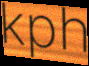
kph